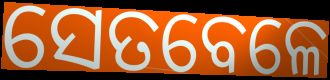
ସେତବେଳେ